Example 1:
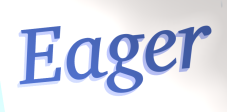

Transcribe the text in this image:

Eager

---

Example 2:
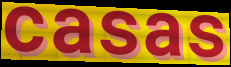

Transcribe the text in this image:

casas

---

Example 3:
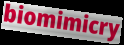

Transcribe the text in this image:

biomimicry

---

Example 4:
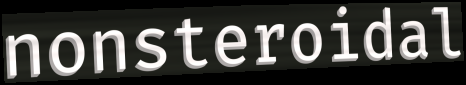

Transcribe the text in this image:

nonsteroidal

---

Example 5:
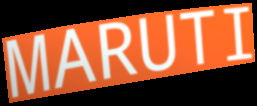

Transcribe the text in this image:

MARUTI